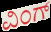
ವಿಂಗ್